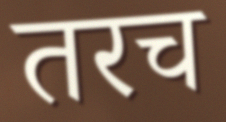
तरच